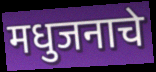
मधुजनाचे